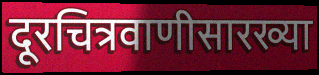
दूरचित्रवाणीसारख्या